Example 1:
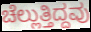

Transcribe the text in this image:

ಚೆಲ್ಲುತ್ತಿದ್ದವು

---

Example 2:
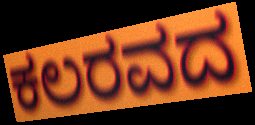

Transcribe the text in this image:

ಕಲರವದ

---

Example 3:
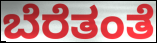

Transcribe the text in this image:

ಬೆರೆತಂತೆ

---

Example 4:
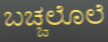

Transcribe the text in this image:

ಬಚ್ಚಲೊಲೆ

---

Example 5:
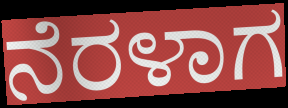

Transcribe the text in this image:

ನೆರಳಾಗ